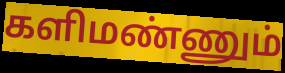
களிமண்ணும்